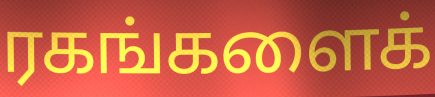
ரகங்களைக்